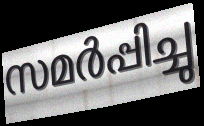
സമർപ്പിച്ചു